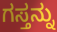
ಗಸ್ತನ್ನು